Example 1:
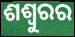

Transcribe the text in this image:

ଶଶ୍ୱୁରର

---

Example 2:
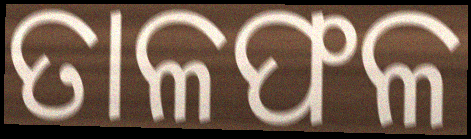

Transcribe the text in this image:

ତାଳଫଳ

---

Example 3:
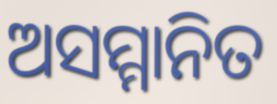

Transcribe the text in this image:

ଅସମ୍ମାନିତ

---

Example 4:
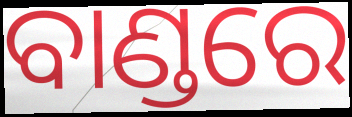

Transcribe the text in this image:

ବାଣ୍ଡରେ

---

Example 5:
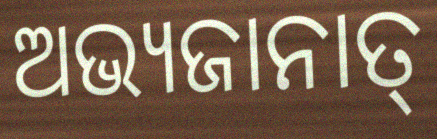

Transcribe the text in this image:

ଅଭ୍ୟଜାନାତ୍